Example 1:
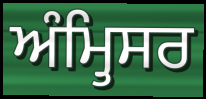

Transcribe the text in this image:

ਅੰਮ੍ਤਿਸਰ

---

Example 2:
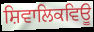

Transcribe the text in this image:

ਸ਼ਿਵਾਲਿਕਵਿਊ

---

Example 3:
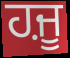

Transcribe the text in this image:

ਹ਼ਜੂ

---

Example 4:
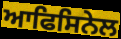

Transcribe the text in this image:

ਆਫਿਸਿਨੇਲ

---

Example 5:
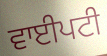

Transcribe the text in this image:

ਵਾਈਪਟੀ